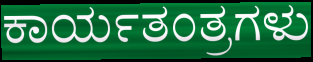
ಕಾರ್ಯತಂತ್ರಗಳು